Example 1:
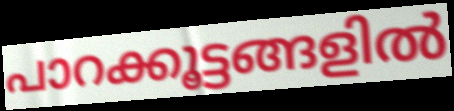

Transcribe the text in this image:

പാറക്കൂട്ടങ്ങളിൽ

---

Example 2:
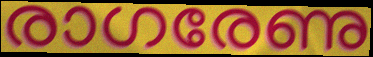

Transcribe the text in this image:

രാഗരേണു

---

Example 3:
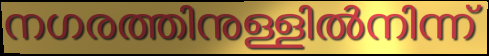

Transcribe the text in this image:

നഗരത്തിനുള്ളിൽനിന്ന്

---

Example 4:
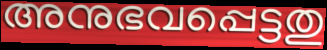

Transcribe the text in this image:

അനുഭവപ്പെട്ടതു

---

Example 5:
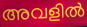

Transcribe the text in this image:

അവളിൽ